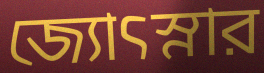
জ্যোৎস্নার